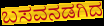
ಬಸವನಡಗಿದ